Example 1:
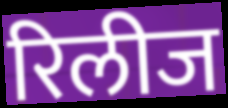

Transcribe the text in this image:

रिलीज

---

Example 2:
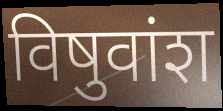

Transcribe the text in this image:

विषुवांश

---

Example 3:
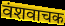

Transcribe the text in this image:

वंशवाचक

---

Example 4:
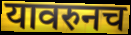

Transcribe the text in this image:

यावरुनच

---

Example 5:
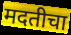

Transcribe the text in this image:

मदतीचा